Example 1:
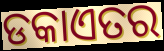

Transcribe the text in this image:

ଡକାଏତର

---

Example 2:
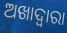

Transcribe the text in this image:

ଅଖାଦ୍ୱାରା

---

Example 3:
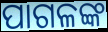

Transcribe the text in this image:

ପାଗଳଙ୍କ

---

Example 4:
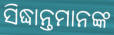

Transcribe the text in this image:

ସିଦ୍ଧାନ୍ତମାନଙ୍କ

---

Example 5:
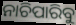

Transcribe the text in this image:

ନାଚିପାରିବୁ